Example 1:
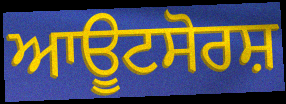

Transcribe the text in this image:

ਆਊਟਸੋਰਸ਼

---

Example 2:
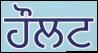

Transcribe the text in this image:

ਹੌਲਟ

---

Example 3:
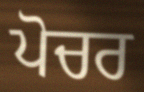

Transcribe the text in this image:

ਪੋਚਰ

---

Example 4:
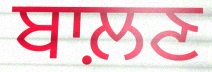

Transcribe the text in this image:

ਬਾਲ਼ਣ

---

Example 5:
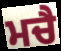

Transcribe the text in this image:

ਮਚੈ